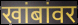
खांबांवर